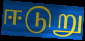
ஈடுறு